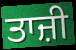
ਤਾਜ਼ੀ